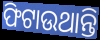
ଫିଟାଉଥାନ୍ତି